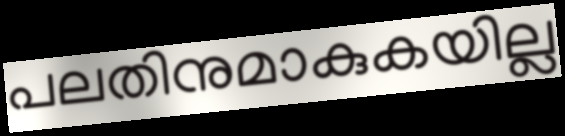
പലതിനുമാകുകയില്ല